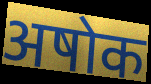
अषोक